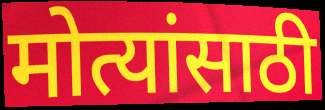
मोत्यांसाठी